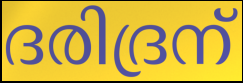
ദരിദ്രന്